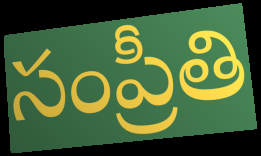
సంప్రీతి